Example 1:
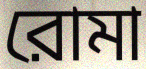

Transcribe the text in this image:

রোমা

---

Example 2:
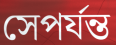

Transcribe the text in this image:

সেপর্যন্ত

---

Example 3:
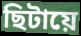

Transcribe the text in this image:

ছিটায়ে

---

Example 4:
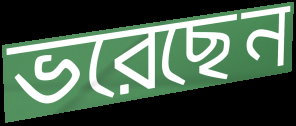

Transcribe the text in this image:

ভরেছেন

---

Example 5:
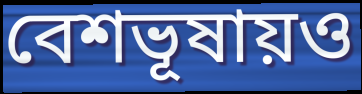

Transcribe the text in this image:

বেশভূষায়ও